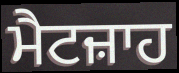
ਮੈਟਜ਼ਾਹ